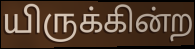
யிருக்கின்ற